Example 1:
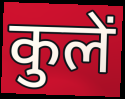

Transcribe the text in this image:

कुलें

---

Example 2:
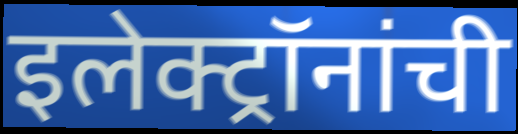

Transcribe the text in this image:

इलेक्ट्रॉनांची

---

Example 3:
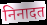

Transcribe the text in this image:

निनादत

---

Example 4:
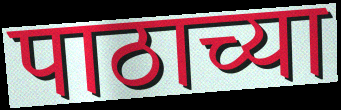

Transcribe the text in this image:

पाठाच्या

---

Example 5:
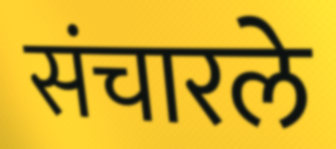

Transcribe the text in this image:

संचारले